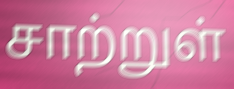
சாற்றுள்